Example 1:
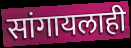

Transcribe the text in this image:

सांगायलाही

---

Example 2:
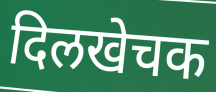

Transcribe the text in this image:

दिलखेचक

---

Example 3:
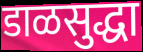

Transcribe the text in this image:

डाळसुद्धा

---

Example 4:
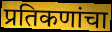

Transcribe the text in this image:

प्रतिकणांचा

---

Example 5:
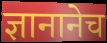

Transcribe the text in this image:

ज्ञानानेच